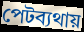
পেটব্যথায়